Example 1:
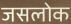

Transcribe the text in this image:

जसलोक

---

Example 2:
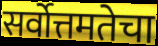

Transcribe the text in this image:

सर्वोत्तमतेचा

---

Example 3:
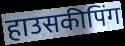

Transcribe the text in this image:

हाउसकीपिंग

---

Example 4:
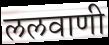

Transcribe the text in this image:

ललवाणी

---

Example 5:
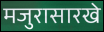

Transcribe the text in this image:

मजुरासारखे